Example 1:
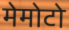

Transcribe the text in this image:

मेमोटो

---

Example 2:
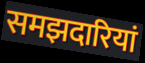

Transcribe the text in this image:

समझदारियां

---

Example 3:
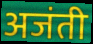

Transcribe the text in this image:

अजंती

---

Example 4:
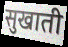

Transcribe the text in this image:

सुखाती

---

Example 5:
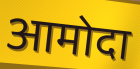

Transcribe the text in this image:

आमोदा